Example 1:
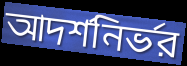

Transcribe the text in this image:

আদর্শনির্ভর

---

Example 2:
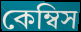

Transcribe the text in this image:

কেম্বিস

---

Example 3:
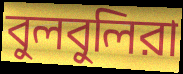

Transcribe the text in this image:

বুলবুলিরা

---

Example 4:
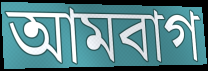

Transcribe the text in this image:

আমবাগ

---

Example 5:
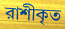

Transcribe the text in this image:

রাশীকৃত